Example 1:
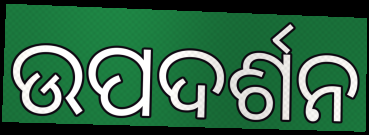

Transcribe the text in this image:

ଉପଦର୍ଶନ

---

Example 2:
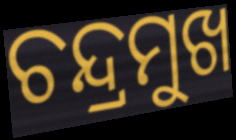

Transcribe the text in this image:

ଚନ୍ଦ୍ରମୁଖ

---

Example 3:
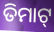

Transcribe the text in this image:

ତିମାଟ୍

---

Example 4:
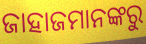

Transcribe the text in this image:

ଜାହାଜମାନଙ୍କରୁ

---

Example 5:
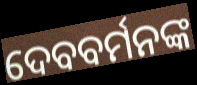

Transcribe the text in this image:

ଦେବବର୍ମନଙ୍କ